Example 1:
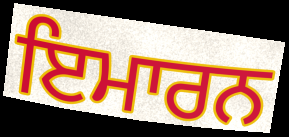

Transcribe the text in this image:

ਇਮਾਰਨ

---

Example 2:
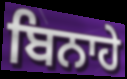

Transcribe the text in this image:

ਬਿਨਾਹੇ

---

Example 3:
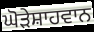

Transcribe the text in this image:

ਘੋੜੇਸ਼ਾਹਵਾਨ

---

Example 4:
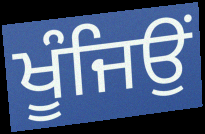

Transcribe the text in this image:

ਖੂੰਜਿਉਂ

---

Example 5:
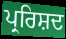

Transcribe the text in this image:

ਪ੍ਰਰਿਸ਼ਦ